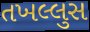
તખલ્લુસ